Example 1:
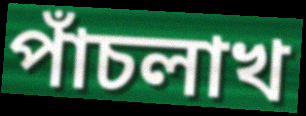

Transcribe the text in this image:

পাঁচলাখ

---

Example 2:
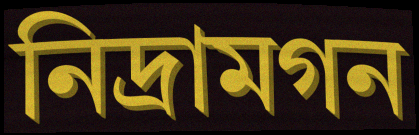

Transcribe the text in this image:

নিদ্রামগন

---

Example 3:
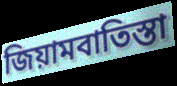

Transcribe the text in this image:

জিয়ামবাতিস্তা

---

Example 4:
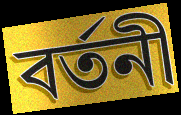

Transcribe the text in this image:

বর্তনী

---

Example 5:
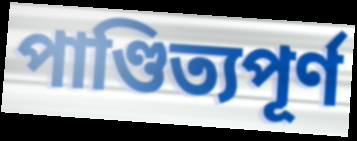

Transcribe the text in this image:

পাণ্ডিত্যপূর্ণ